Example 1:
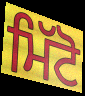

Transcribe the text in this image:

ਮਿੱਟੋ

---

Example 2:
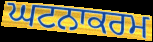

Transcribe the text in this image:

ਘਟਨਾਕਰਮ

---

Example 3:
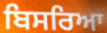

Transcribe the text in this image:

ਬਿਸਰਿਆ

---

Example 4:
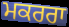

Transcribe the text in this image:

ਮਕਰਰਾ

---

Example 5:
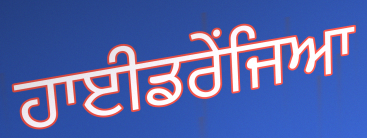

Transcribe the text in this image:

ਹਾਈਡਰੇਂਜਿਆ